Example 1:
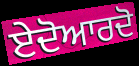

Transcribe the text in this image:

ਏਦੋਆਰਦੋ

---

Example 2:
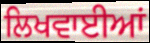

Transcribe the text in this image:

ਲਿਖਵਾਈਆਂ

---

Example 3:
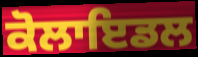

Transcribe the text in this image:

ਕੋਲਾਇਡਲ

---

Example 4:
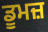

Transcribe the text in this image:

ਡੂਮਜ਼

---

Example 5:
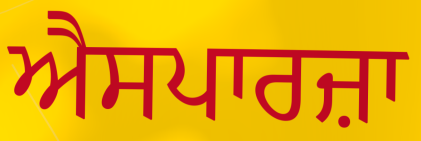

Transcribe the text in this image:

ਐਸਪਾਰਜ਼ਾ